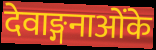
देवाङ्गनाओंके